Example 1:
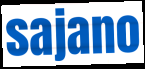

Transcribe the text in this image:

sajano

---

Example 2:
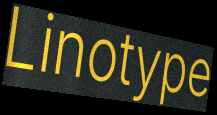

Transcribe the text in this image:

Linotype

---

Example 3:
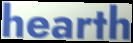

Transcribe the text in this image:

hearth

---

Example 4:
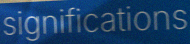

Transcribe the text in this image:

significations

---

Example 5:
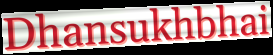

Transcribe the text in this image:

Dhansukhbhai